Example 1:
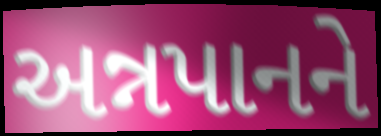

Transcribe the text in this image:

અન્નપાનને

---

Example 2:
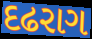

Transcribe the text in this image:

દઢરાગ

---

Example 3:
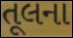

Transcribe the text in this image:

તૂલના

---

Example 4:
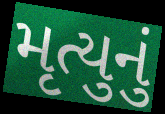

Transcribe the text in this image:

મૃત્યુનું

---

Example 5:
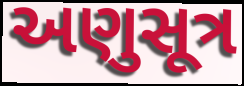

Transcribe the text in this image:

અણુસૂત્ર